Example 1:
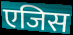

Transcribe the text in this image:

एजिस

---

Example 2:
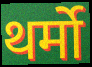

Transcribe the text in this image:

थर्मो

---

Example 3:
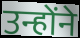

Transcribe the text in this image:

उन्‍होंने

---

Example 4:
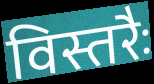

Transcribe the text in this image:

विस्तरैः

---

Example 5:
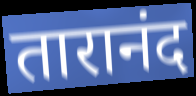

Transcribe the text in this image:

तारानंद